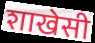
शाखेसी